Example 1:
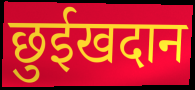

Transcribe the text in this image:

छुईखदान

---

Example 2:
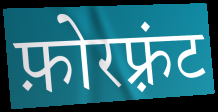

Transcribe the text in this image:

फ़ोरफ़्रंट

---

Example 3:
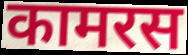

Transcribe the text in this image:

कामरस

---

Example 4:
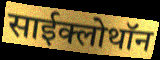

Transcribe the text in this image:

साईक्लोथॉन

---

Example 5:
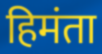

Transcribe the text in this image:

हिमंता